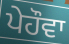
ਪੇਹੌਵਾ